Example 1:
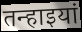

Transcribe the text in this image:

तन्हाइयां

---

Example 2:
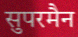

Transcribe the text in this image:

सुपरमैन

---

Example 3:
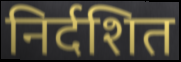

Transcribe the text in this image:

निर्दशित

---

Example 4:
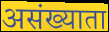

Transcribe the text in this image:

असंख्याता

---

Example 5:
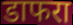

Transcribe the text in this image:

डाफरा